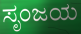
ಸೃಂಜಯ